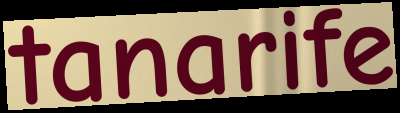
tanarife